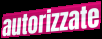
autorizzate